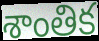
శాంతిక